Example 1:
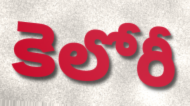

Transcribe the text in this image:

కెలోరీ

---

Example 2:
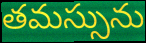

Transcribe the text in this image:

తమస్సును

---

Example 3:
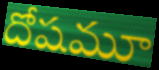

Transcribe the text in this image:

దోషమూ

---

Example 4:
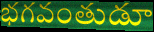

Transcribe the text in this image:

భగవంతుడూ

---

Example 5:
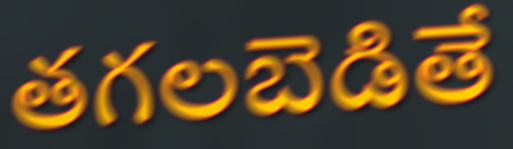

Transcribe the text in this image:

తగలబెడితే